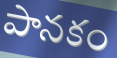
పానకం